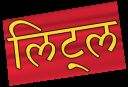
लिट्‌ल